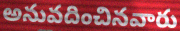
అనువదించినవారు